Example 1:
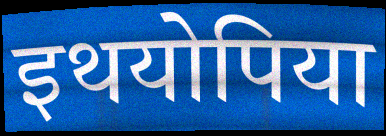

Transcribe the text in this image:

इथयोपिया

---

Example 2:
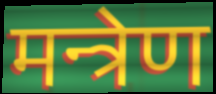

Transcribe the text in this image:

मन्त्रेण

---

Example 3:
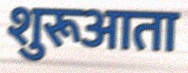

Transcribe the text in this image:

शुरूआता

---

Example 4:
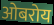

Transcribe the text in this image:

ओबरोय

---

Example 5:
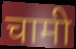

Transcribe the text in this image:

चामी